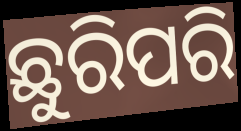
ଛୁରିପରି